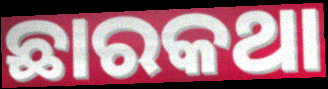
ଛାରକଥା